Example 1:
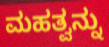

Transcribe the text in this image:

ಮಹತ್ವನ್ನು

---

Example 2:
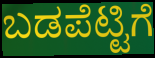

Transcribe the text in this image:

ಬಡಪೆಟ್ಟಿಗೆ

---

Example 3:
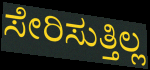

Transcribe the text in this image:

ಸೇರಿಸುತ್ತಿಲ್ಲ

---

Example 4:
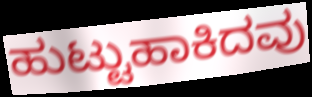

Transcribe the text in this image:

ಹುಟ್ಟುಹಾಕಿದವು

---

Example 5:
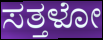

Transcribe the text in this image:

ಸತ್ತಳೋ